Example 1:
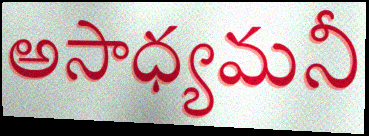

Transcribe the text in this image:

అసాధ్యమనీ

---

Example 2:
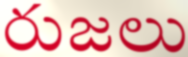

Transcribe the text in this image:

రుజలు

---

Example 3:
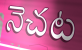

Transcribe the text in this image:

నెచట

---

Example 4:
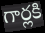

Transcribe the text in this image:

గార్లకి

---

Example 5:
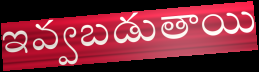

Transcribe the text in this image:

ఇవ్వబడుతాయి